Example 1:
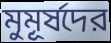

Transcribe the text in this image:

মুমূর্ষদের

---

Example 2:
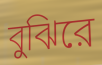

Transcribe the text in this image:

বুঝিরে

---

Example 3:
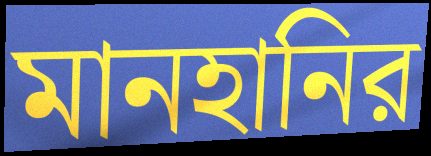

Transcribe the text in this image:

মানহানির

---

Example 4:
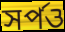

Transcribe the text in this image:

সর্পও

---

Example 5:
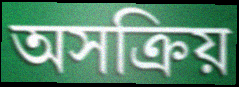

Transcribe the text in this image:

অসক্রিয়